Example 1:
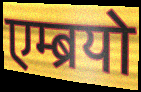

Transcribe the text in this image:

एम्ब्रयो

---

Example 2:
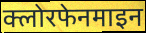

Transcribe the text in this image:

क्लोरफेनमाइन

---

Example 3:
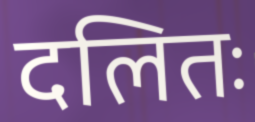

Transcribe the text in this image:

दलितः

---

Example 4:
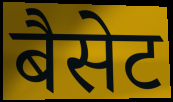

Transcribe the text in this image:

बैसेट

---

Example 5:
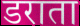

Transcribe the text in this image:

डराता